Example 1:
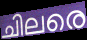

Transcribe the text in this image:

ചിലരെ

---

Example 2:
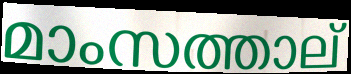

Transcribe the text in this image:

മാംസത്താല്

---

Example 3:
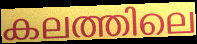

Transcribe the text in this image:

കലത്തിലെ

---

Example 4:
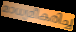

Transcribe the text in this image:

മാധ്യമീകരിച്ച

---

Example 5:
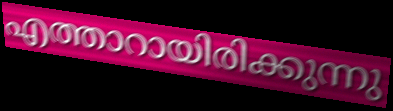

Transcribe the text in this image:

എത്താറായിരിക്കുന്നു